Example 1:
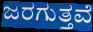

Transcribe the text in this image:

ಜರಗುತ್ತವೆ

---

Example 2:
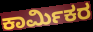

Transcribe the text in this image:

ಕಾರ್ಮಿಕರ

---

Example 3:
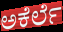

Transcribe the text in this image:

ಅಕೆರ್ಲೆ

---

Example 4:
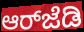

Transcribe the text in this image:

ಆರ್‌ಜೆಡಿ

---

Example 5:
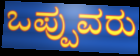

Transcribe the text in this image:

ಒಪ್ಪುವರು